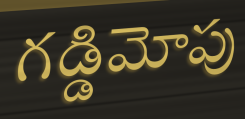
గడ్డిమోపు